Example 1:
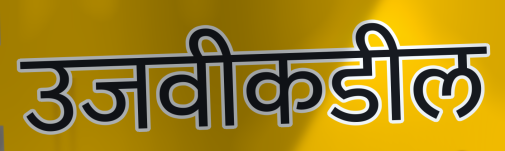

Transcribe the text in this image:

उजवीकडील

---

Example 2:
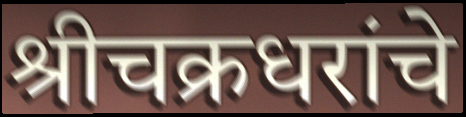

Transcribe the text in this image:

श्रीचक्रधरांचे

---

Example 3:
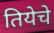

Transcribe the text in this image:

तियेचे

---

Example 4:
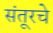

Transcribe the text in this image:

संतूरचे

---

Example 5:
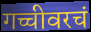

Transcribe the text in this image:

गच्चीवरचं